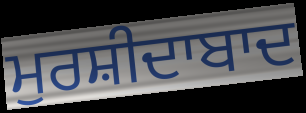
ਮੁਰਸ਼ੀਦਾਬਾਦ